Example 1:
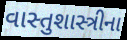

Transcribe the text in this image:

વાસ્તુશાસ્ત્રીના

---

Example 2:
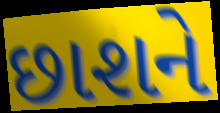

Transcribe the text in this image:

છાશને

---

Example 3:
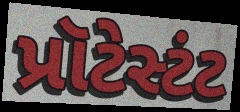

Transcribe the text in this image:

પ્રૉટેસ્ટંટ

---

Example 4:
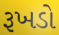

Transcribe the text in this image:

રૂખડો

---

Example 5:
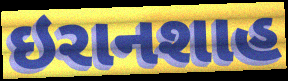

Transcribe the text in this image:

ઇરાનશાહ